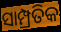
ସାମ୍ପ୍ରତିକ